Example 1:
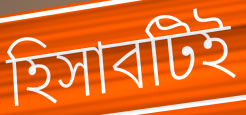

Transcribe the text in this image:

হিসাবটিই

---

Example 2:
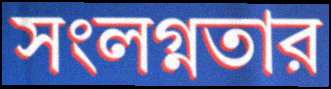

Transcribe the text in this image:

সংলগ্নতার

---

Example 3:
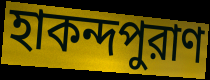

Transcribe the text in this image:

হাকন্দপুরাণ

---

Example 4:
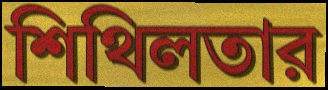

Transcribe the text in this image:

শিথিলতার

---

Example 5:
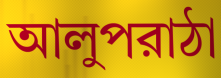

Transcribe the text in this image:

আলুপরাঠা